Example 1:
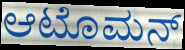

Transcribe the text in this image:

ಆಟೊಮನ್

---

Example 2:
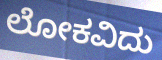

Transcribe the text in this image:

ಲೋಕವಿದು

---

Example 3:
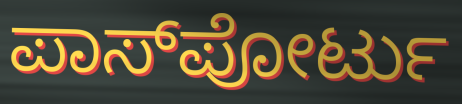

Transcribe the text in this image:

ಪಾಸ್‌ಪೋರ್ಟು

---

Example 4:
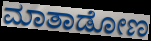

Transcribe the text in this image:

ಮಾತಾಡೋಣ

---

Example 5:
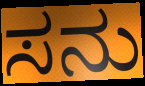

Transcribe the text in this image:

ಸನು